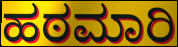
ಹಠಮಾರಿ